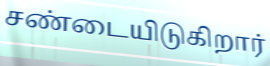
சண்டையிடுகிறார்